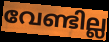
വേണ്ടില്ല